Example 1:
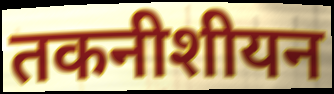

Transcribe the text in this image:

तकनीशीयन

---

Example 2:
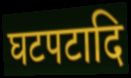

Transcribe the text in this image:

घटपटादि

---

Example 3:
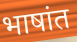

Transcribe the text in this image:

भाषांत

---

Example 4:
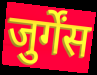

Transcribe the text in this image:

जुर्गेंस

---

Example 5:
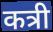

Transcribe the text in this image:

कत्री